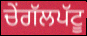
ਚੇਂਗੱਲਪੱਟੂ